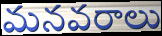
మనవరాలు